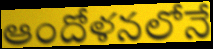
ఆందోళనలోనే